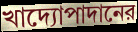
খাদ্যোপাদানের